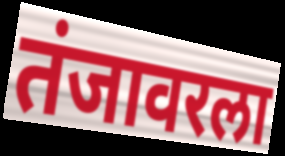
तंजावरला